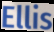
Ellis